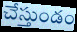
చేస్తుండం